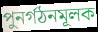
পুনর্গঠনমূলক